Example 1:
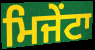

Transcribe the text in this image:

ਮਿਜੇਂਟਾ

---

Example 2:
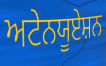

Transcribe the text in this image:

ਅਟੇਨਯੂਏਸ਼ਨ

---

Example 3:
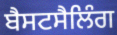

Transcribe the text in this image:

ਬੈਸਟਸੈਲਿੰਗ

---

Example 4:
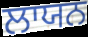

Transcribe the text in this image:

ਲਾਯਨ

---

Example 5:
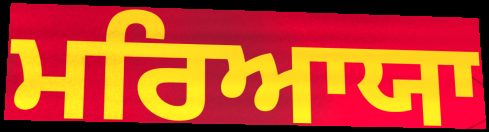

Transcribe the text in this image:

ਮਰਿਆਯਾ